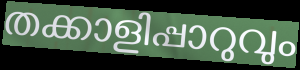
തക്കാളിപ്പാറുവും